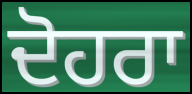
ਦੋਹਰਾ